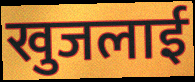
खुजलाई